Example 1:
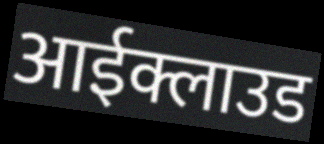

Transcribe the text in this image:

आईक्लाउड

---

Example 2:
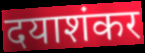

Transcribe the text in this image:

दयाशंकर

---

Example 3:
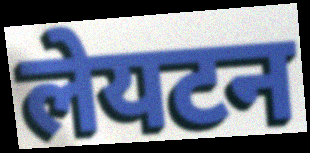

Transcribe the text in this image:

लेयटन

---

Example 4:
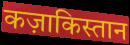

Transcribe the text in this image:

कज़ाकिस्तान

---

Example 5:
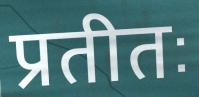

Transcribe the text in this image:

प्रतीतः